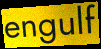
engulf